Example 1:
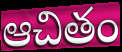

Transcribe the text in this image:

ఆచితం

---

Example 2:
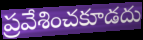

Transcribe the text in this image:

ప్రవేశించకూడదు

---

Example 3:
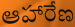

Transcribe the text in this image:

ఆహారేణ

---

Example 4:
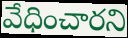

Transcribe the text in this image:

వేధించారని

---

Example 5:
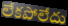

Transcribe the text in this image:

లేకపోలేదు